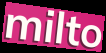
milto